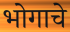
भोगाचे